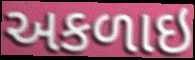
અકળાઇ